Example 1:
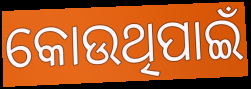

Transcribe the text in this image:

କୋଉଥିପାଇଁ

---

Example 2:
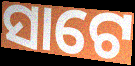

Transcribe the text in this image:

ସାଟେ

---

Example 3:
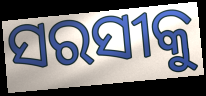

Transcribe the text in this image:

ସରସୀକୁ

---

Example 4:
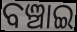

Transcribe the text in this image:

ବଞ୍ଚାଇ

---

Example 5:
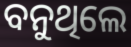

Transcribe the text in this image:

ବନୁଥିଲେ